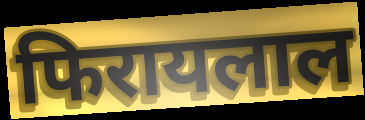
फिरायलाल